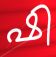
ഷി